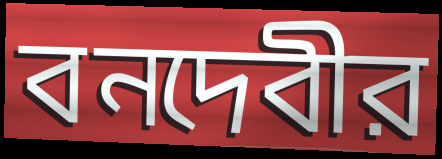
বনদেবীর